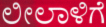
ಲೀಲಾಳಿಗೆ